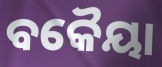
ବକୈୟା